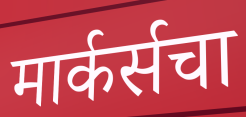
मार्कर्सचा